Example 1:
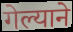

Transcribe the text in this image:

गेल्‍याने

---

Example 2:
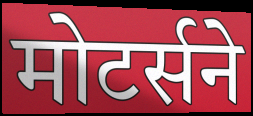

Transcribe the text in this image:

मोटर्सने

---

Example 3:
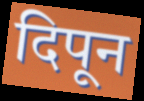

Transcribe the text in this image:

दिपून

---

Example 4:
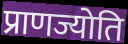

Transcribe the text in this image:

प्राणज्योति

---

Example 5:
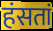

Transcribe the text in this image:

हंसतां